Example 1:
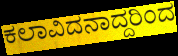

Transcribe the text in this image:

ಕಲಾವಿದನಾದ್ದರಿಂದ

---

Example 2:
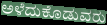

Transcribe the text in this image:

ಅಳೆದುಕೊಡುವರು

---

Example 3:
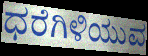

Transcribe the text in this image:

ಧರೆಗಿಳಿಯುವ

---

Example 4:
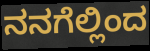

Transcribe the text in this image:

ನನಗೆಲ್ಲಿಂದ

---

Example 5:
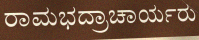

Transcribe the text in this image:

ರಾಮಭದ್ರಾಚಾರ್ಯರು